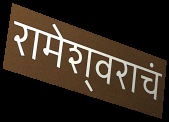
रामेश्वराचं